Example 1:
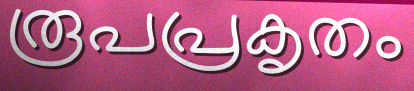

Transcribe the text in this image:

രൂപപ്രകൃതം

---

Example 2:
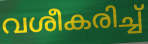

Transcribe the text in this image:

വശീകരിച്ച്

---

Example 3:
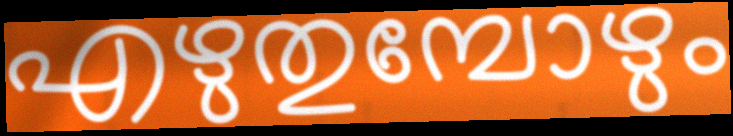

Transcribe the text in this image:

എഴുതുമ്പോഴും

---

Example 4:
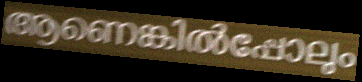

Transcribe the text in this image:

ആണെങ്കിൽപ്പോലും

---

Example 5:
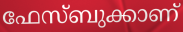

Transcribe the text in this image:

ഫേസ്ബുക്കാണ്